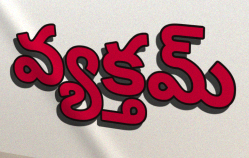
వ్యక్తమ్